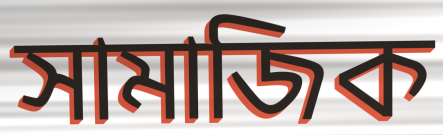
সামাজিক